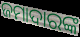
ଜମାଦାରଙ୍କ